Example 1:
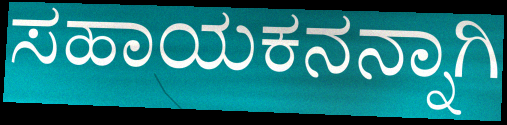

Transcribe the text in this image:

ಸಹಾಯಕನನ್ನಾಗಿ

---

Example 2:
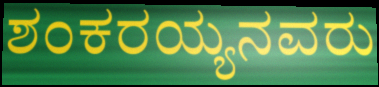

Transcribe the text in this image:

ಶಂಕರಯ್ಯನವರು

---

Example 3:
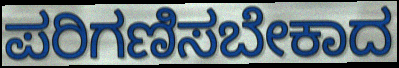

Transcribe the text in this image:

ಪರಿಗಣಿಸಬೇಕಾದ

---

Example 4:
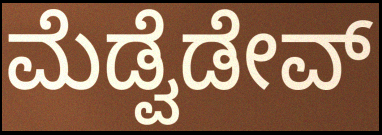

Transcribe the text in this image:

ಮೆಡ್ವೆಡೇವ್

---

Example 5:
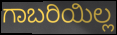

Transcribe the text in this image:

ಗಾಬರಿಯಿಲ್ಲ